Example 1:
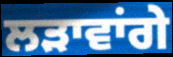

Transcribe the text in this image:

ਲੜਾਵਾਂਗੇ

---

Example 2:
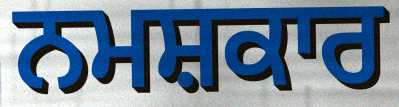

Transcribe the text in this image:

ਨਮਸ਼ਕਾਰ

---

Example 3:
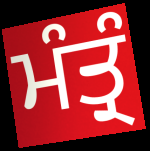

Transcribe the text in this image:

ਮੰਤ੍ਰੰ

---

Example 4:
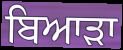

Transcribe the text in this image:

ਬਿਆੜਾ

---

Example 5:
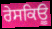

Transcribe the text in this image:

ਰੇਸਕਿਊ